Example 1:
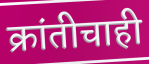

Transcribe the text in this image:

क्रांतीचाही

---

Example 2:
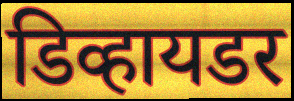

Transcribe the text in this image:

डिव्हायडर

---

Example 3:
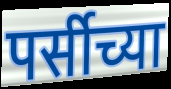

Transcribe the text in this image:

पर्सीच्या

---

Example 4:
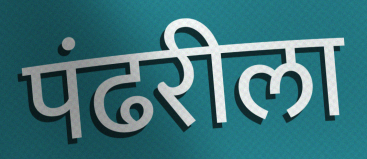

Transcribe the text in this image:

पंढरीला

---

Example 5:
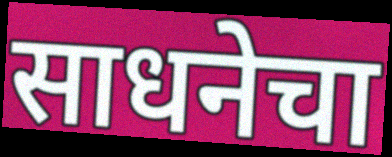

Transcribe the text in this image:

साधनेचा